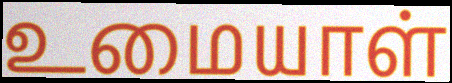
உமையாள்